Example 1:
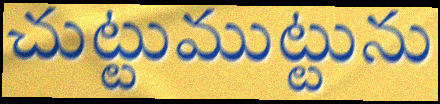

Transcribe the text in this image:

చుట్టుముట్టును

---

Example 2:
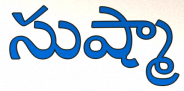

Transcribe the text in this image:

సుష్మా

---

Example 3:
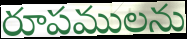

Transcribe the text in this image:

రూపములను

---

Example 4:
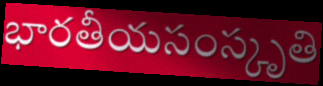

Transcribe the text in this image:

భారతీయసంస్కృతి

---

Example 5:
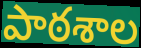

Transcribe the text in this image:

పాఠశాల